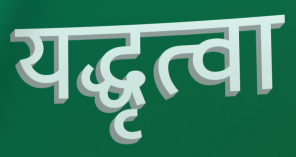
यद्धृत्वा